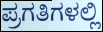
ಪ್ರಗತಿಗಳಲ್ಲಿ